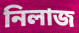
নিলাজ